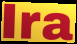
Ira